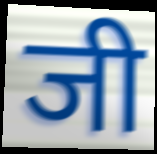
जी